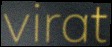
virat